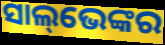
ସାଲ୍‌ଭେଙ୍କର